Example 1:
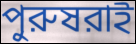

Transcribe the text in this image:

পুরুষরাই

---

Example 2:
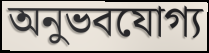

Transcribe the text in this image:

অনুভবযোগ্য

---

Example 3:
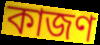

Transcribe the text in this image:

কাজণ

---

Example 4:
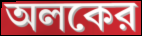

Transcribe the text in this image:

অলকের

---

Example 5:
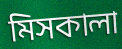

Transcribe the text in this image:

মিসকালা